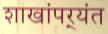
शाखांपर्यंत